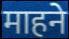
माहने